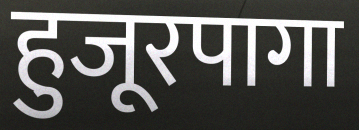
हुजूरपागा